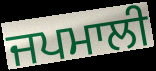
ਜਪਮਾਲੀ